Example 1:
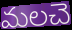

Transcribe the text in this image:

మలచె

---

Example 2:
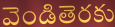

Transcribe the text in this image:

వెండితెరకు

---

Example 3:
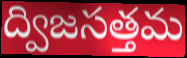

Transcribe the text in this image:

ద్విజసత్తమ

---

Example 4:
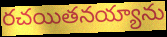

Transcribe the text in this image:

రచయితనయ్యాను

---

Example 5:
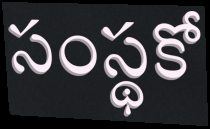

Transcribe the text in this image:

సంస్థకో